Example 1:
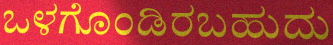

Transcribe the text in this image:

ಒಳಗೊಂಡಿರಬಹುದು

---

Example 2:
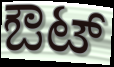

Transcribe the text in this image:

ಔಟ್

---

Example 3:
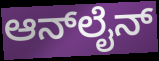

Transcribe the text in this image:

ಆನ್‍ಲೈನ್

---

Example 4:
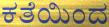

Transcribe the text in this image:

ಕತೆಯಿಂದ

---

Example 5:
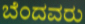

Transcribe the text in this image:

ಬೆಂದವರು